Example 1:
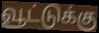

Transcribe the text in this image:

வூட்டுக்கு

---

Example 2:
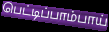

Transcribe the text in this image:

பெட்டிப்பாம்பாய்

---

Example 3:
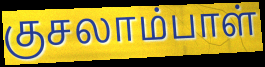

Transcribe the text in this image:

குசலாம்பாள்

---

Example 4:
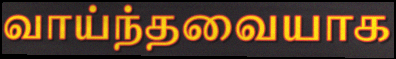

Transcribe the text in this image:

வாய்ந்தவையாக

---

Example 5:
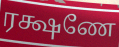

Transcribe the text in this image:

ரக்ஷணே